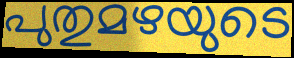
പുതുമഴയുടെ